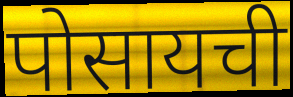
पोसायची